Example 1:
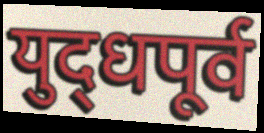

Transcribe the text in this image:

युद्धपूर्व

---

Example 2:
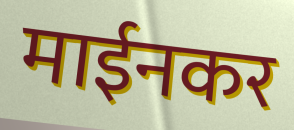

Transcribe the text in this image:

माईनकर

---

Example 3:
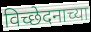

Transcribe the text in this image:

विच्छेदनाच्या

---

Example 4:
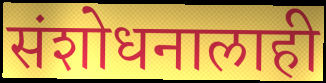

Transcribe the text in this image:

संशोधनालाही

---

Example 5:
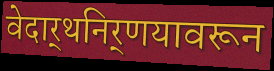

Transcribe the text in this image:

वेदार्थनिर्णयावरून